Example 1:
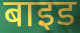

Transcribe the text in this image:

बाइड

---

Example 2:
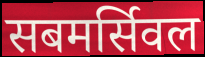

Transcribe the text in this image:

सबमर्सिवल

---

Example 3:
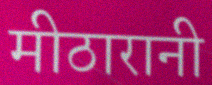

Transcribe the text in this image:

मीठारानी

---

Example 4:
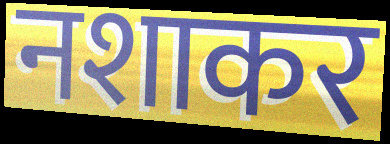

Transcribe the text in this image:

नशाकर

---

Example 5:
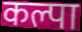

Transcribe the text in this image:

कल्पा